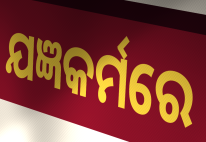
ଯଜ୍ଞକର୍ମରେ